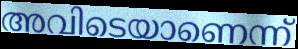
അവിടെയാണെന്ന്